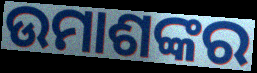
ଉମାଶଙ୍କର